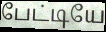
பேட்டியே